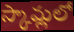
స్కామ్లలో